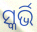
ସ୍କର୍ଭି